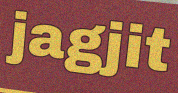
jagjit